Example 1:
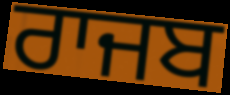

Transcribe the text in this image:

ਰਾਜਬ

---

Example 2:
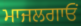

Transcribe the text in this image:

ਮਾਜਲਗਾਓਂ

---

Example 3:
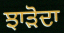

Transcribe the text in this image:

ਝਾੜੋਦਾ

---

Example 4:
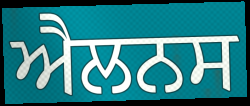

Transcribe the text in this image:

ਐਲਨਸ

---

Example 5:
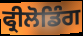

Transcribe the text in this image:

ਫ੍ਰੀਲੋਡਿੰਗ